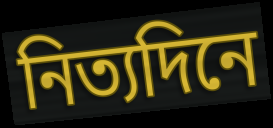
নিত্যদিনে